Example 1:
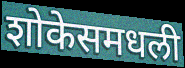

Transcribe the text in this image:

शोकेसमधली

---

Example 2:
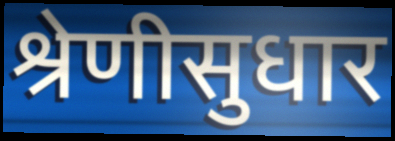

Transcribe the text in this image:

श्रेणीसुधार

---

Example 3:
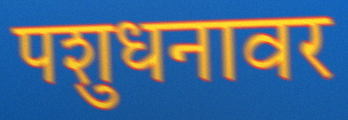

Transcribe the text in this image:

पशुधनावर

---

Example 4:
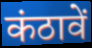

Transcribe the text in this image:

कंठावें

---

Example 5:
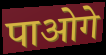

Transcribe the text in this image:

पाओगे